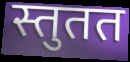
स्तुतत